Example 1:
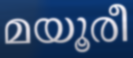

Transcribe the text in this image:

മയൂരീ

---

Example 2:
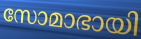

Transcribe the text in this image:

സോമാഭായി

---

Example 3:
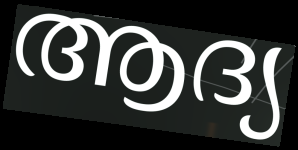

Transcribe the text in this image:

ആദ്യ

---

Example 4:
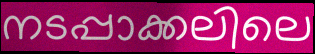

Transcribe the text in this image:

നടപ്പാക്കലിലെ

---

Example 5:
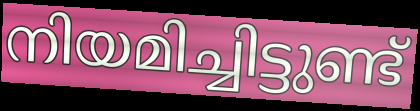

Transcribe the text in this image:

നിയമിച്ചിട്ടുണ്ട്